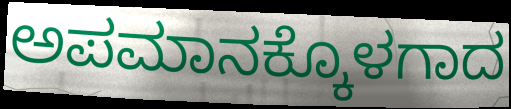
ಅಪಮಾನಕ್ಕೊಳಗಾದ